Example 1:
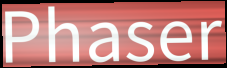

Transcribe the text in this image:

Phaser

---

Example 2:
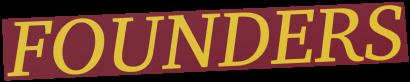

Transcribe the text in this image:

FOUNDERS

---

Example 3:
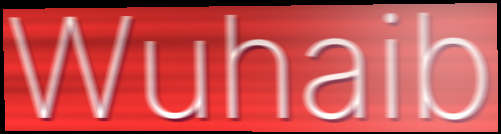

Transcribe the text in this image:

Wuhaib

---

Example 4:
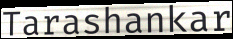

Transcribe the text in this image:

Tarashankar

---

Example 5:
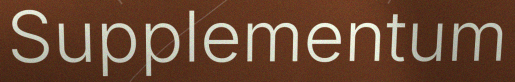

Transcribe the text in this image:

Supplementum